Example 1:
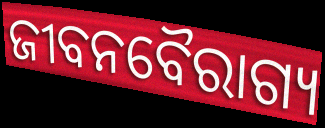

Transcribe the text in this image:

ଜୀବନବୈରାଗ୍ୟ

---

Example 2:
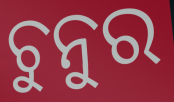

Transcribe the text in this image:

ଚୁନୁର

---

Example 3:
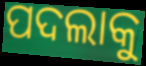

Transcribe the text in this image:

ପଦଲାକୁ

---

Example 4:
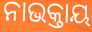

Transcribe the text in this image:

ନାଭକ୍ତାୟ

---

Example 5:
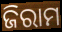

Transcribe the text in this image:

ଜିରାମ